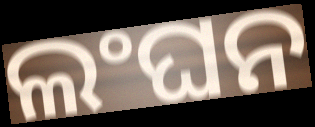
ଲଂଘନ